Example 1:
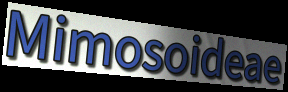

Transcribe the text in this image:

Mimosoideae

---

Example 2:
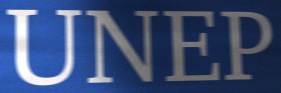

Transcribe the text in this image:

UNEP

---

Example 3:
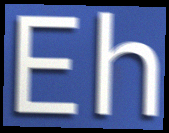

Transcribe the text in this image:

Eh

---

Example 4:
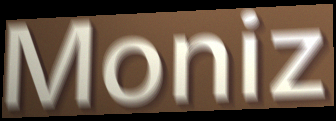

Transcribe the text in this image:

Moniz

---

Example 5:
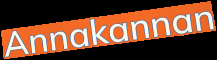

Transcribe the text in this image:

Annakannan